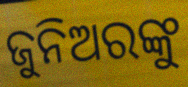
ଜୁନିଅରଙ୍କୁ